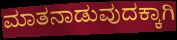
ಮಾತನಾಡುವುದಕ್ಕಾಗಿ